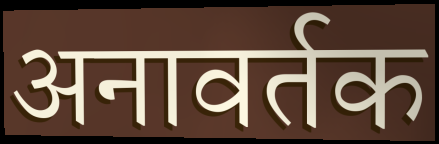
अनावर्तक